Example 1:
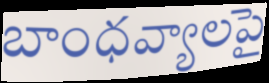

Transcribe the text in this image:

బాంధవ్యాలపై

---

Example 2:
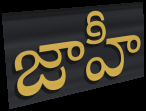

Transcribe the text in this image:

జాహీ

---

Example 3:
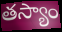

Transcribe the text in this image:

తస్యాం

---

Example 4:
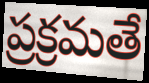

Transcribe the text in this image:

ప్రక్రమతే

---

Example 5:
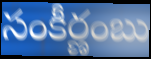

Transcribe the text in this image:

సంకీర్ణంబు